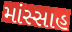
માંસ્સાહ